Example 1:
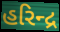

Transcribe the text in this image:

હરિન્દ્ર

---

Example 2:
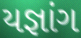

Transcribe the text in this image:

યજ્ઞાંગ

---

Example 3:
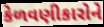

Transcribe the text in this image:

કેળવણીકારોને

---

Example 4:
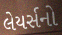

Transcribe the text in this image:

લેયર્સનો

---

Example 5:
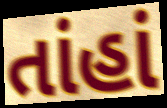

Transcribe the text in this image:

તાંહાં